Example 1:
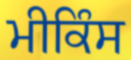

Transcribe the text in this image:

ਮੀਕਿੰਸ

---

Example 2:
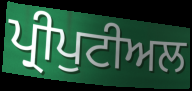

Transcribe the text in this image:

ਪ੍ਰੀਪੁਟੀਅਲ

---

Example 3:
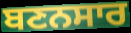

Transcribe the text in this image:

ਬਣਨਸਾਰ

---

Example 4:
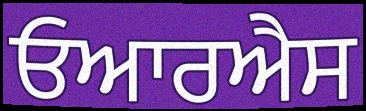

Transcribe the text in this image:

ਓਆਰਐਸ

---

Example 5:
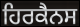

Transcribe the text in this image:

ਹਿਰਕੈਨਸ